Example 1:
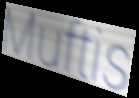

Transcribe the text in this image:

Muftis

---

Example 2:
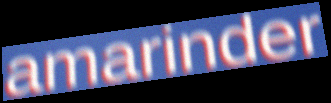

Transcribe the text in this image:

amarinder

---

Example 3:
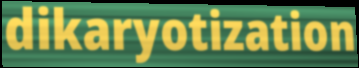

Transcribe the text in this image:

dikaryotization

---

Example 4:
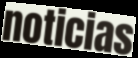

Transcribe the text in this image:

noticias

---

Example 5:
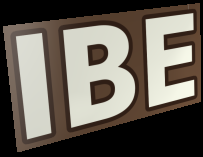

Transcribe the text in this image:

IBE